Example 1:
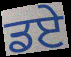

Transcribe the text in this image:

ਡਏ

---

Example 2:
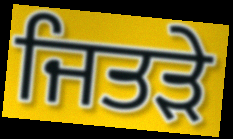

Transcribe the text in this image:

ਜਿਤੜੇ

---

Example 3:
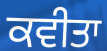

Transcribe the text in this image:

ਕਵੀਤਾ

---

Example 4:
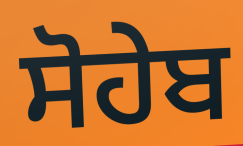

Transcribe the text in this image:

ਸੋਹੇਬ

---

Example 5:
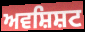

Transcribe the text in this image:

ਅਵਸ਼ਿਸ਼ਟ